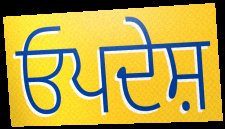
ਓਪਦੇਸ਼